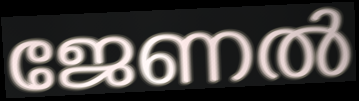
ജേണൽ